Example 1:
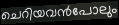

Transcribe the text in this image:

ചെറിയവൻപോലും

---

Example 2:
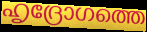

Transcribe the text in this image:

ഹൃദ്രോഗത്തെ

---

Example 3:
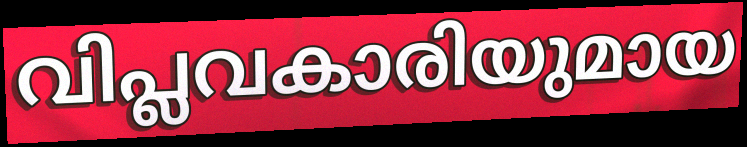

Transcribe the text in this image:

വിപ്ലവകാരിയുമായ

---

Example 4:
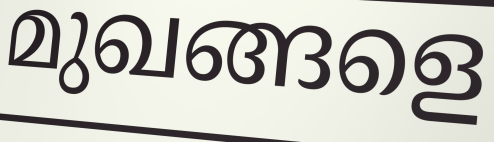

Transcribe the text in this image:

മുഖങ്ങളെ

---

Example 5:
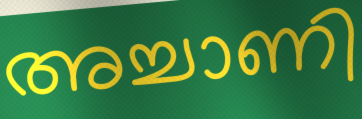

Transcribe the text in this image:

അച്ചാണി